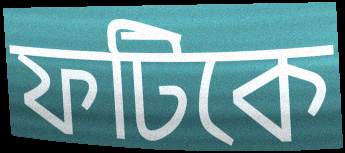
ফটিকে